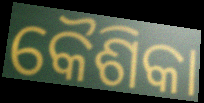
କୈଶିକା